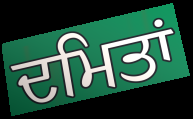
ਦਮਿਤਾਂ